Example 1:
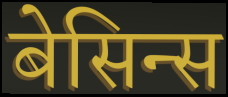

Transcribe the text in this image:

बेसिन्स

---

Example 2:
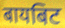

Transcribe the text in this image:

बायबिट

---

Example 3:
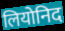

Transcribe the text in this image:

लियोनिद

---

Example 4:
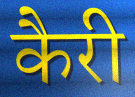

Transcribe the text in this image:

कैरी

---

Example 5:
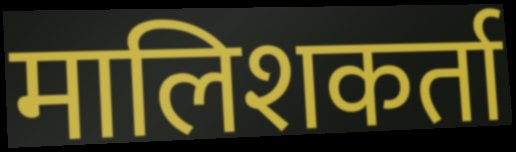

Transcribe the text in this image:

मालिशकर्ता